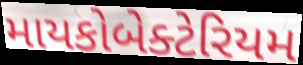
માયકોબેક્ટેરિયમ